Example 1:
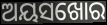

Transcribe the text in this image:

ଅୟସଖୋର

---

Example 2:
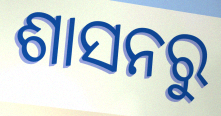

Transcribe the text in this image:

ଶାସନରୁ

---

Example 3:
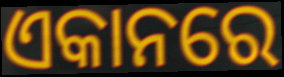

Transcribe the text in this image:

ଏକାନରେ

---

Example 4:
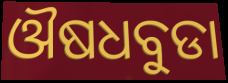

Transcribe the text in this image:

ଔଷଧବୁଡା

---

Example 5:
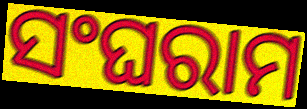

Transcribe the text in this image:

ସଂଘରାମ